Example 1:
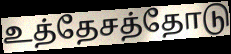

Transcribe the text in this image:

உத்தேசத்தோடு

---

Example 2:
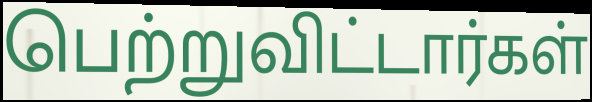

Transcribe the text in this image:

பெற்றுவிட்டார்கள்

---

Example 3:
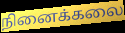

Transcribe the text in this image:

நினைக்கலை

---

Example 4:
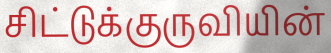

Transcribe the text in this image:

சிட்டுக்குருவியின்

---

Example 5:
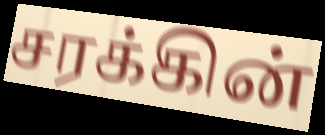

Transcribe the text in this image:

சரக்கின்